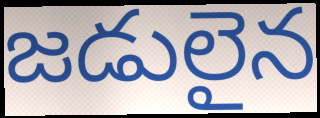
జడులైన